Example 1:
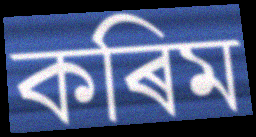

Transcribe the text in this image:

কৰিম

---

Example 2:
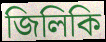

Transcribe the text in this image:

জিলিকি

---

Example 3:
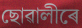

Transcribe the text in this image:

ছোৱালীৰে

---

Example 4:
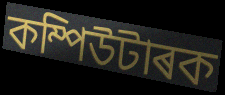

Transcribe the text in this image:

কম্পিউটাৰক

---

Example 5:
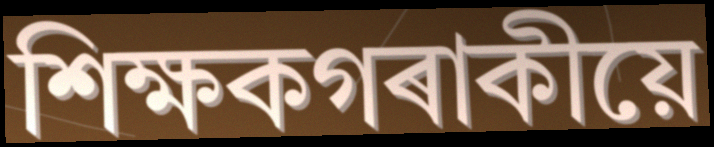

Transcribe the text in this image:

শিক্ষকগৰাকীয়ে